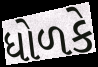
ધોળકે